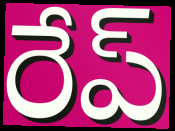
రేప్